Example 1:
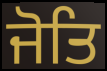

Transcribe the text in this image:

ਜੋਤਿ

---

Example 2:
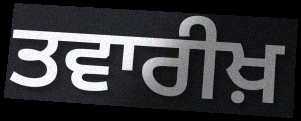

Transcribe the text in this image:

ਤਵਾਰੀਖ਼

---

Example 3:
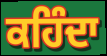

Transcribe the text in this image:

ਕਹਿੰਦਾ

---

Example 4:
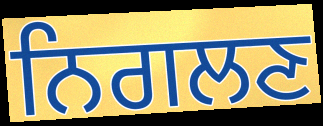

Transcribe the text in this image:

ਨਿਗਲਣ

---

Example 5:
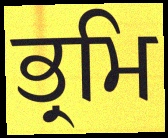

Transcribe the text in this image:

ਭ੍ਰਮਿ